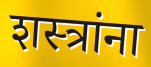
शस्त्रांना